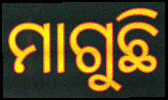
ମାଗୁଛି